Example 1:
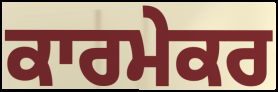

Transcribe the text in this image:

ਕਾਰਮੇਕਰ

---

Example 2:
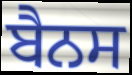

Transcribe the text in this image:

ਬੈਨਸ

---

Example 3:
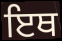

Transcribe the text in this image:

ਇਥ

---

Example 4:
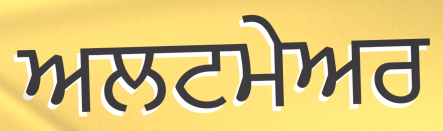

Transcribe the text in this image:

ਅਲਟਮੇਅਰ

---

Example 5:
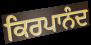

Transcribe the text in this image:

ਕਿਰਪਾਨੰਦ